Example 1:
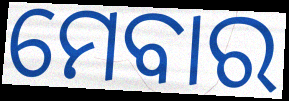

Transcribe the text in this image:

ମେବାର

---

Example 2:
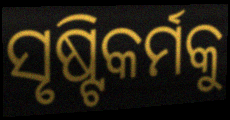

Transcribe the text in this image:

ସୃଷ୍ଟିକର୍ମକୁ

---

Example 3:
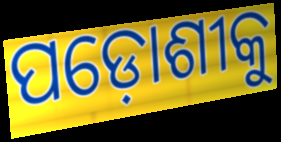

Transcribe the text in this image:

ପଡ଼ୋଶୀକୁ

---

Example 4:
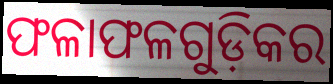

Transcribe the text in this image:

ଫଳାଫଳଗୁଡ଼ିକର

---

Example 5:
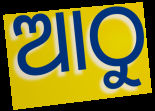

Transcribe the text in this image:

ଆଠୁ